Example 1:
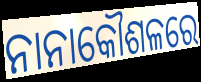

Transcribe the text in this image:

ନାନାକୌଶଳରେ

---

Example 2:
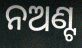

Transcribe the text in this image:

ନଅଣ୍ଟ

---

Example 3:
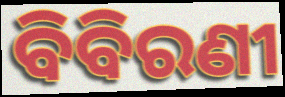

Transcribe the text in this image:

ବିବିରଣୀ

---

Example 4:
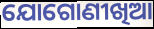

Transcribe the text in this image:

ଯୋଗୋଣୀଖିଆ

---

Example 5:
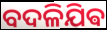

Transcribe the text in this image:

ବଦଳିଯିଵ